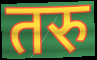
तरु